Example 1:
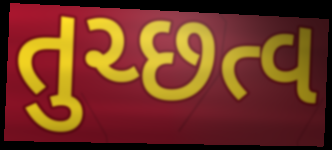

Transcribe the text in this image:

તુચ્છત્વ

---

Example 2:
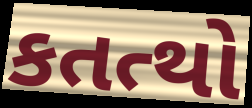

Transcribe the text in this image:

કતત્થો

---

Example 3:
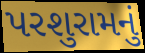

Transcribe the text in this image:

પરશુરામનું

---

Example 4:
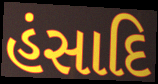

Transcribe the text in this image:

હંસાદિ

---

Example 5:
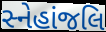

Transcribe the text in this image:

સ્નેહાંજલિ